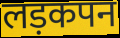
लड़कपन